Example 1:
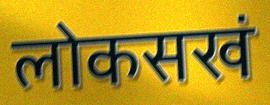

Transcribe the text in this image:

लोकसखं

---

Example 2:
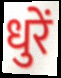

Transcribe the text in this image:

धुरें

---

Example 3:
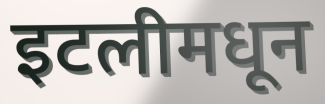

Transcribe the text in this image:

इटलीमधून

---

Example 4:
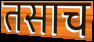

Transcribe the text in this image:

तसाच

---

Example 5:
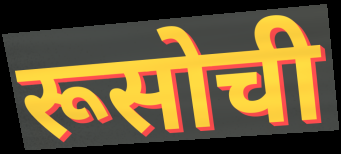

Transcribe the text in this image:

रूसोची